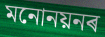
মনোনয়নৰ